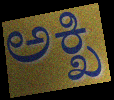
ಅಕ್ಖಿ